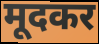
मूदकर